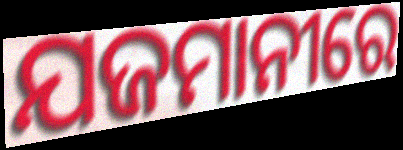
ଯଜମାନୀରେ